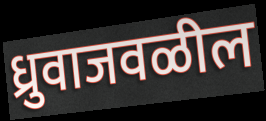
ध्रुवाजवळील